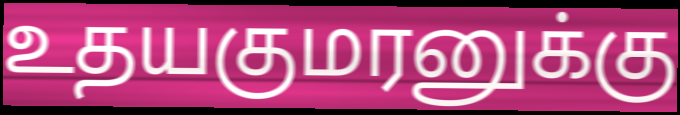
உதயகுமரனுக்கு